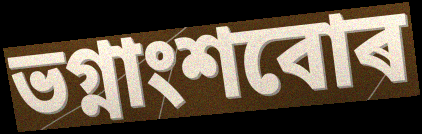
ভগ্নাংশবোৰ